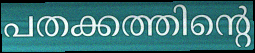
പതക്കത്തിന്റെ